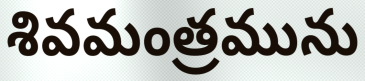
శివమంత్రమును